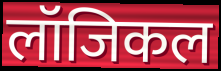
लॉजिकल